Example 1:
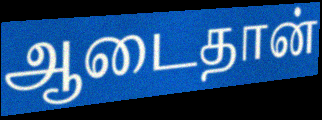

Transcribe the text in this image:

ஆடைதான்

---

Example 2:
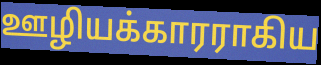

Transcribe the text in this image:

ஊழியக்காரராகிய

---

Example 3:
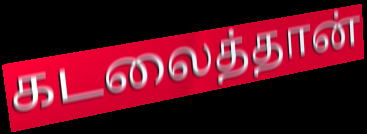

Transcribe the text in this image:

கடலைத்தான்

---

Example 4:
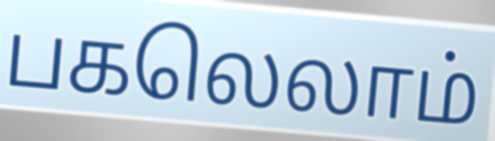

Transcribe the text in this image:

பகலெலாம்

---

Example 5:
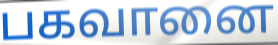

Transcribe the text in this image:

பகவானை